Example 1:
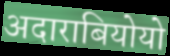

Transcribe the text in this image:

अदाराबियोयो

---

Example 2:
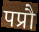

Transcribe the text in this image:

पप्रौ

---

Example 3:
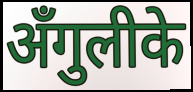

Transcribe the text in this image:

अँगुलीके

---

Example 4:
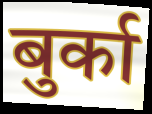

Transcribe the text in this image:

बुर्का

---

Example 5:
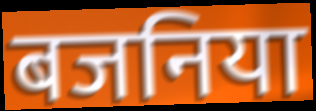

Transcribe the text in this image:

बजनिया